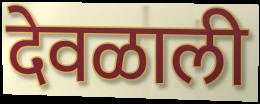
देवळाली